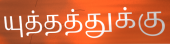
யுத்தத்துக்கு